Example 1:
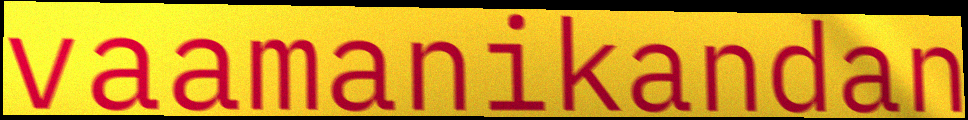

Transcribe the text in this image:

vaamanikandan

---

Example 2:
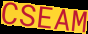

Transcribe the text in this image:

CSEAM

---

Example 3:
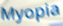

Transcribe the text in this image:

Myopia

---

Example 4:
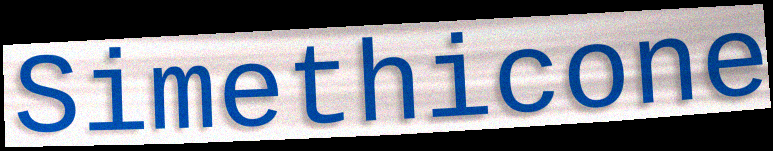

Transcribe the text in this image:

Simethicone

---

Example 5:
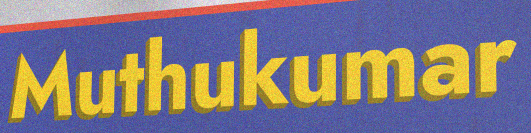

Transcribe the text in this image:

Muthukumar